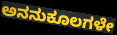
ಅನನುಕೂಲಗಳೇ